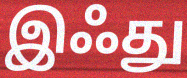
இஃது